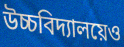
উচ্চবিদ্যালয়েও